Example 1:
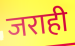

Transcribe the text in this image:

जराही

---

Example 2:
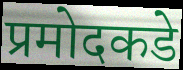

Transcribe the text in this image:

प्रमोदकडे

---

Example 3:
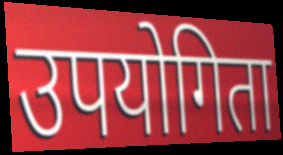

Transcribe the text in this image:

उपयोगिता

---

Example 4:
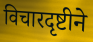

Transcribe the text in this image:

विचारदृष्टीने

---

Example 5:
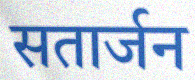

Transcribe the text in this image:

सतार्जन